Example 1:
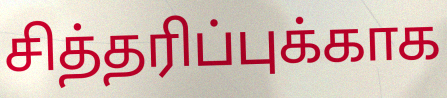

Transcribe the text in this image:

சித்தரிப்புக்காக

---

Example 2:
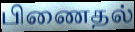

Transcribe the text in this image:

பிணைதல்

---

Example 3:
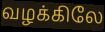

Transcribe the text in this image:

வழக்கிலே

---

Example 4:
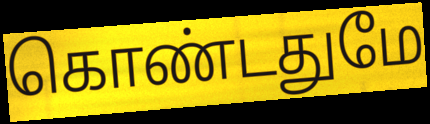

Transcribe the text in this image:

கொண்டதுமே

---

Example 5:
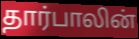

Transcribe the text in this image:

தார்பாலின்